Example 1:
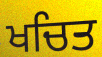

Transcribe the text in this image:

ਖਚਿਤ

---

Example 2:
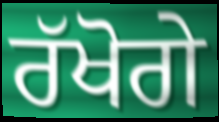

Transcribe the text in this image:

ਰੱਖੋਗੇ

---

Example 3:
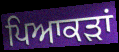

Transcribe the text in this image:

ਪਿਆਕੜਾਂ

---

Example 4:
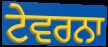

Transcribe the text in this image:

ਟੇਵਰਨਾ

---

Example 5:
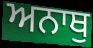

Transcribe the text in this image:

ਅਨਾਥੁ